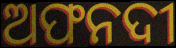
ଅଫନଦୀ